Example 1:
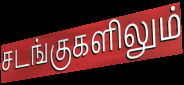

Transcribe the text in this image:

சடங்குகளிலும்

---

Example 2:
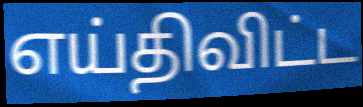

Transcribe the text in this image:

எய்திவிட்ட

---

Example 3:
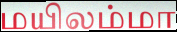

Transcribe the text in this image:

மயிலம்மா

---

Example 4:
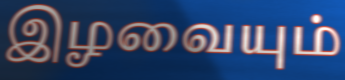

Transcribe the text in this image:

இழவையும்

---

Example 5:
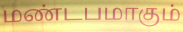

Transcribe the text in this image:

மண்டபமாகும்